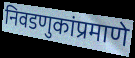
निवडणुकांप्रमाणे